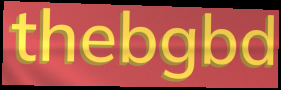
thebgbd